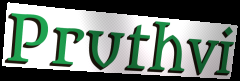
Pruthvi